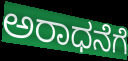
ಅರಾಧನೆಗೆ